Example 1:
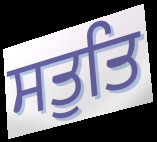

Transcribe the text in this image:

ਸਤੁਤਿ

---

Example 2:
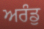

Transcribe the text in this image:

ਅਰੰਡੁ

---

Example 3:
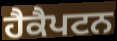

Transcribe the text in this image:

ਹੈਕੈਪਟਨ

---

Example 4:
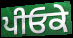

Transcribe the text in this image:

ਪੀਓਕੇ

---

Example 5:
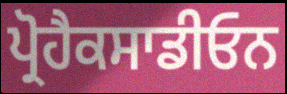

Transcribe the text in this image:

ਪ੍ਰੋਹੈਕਸਾਡੀਓਨ